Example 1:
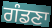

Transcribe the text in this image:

ਗੰਡਣਾ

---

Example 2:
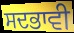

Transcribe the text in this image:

ਸਦਭਾਵੀ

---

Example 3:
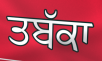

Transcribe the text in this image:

ਤਬੱਕਾ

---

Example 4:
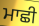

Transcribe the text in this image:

ਮਾਛੀ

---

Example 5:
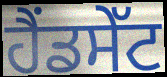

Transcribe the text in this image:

ਹੈਂਡਸੇੱਟ